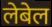
लेबेल